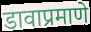
डावाप्रमाणे